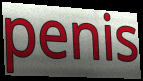
penis